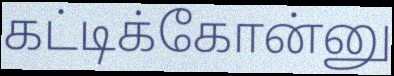
கட்டிக்கோன்னு